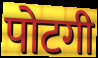
पोटगी